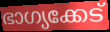
ഭാഗ്യക്കേട്